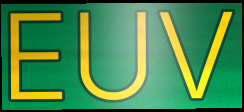
EUV